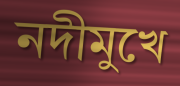
নদীমুখে